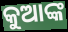
କୁଆଙ୍କ